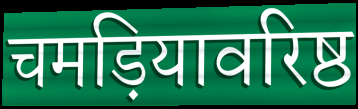
चमड़ियावरिष्ठ